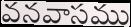
వనవాసము